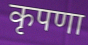
कृपणा